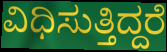
ವಿಧಿಸುತ್ತಿದ್ದರೆ